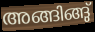
അങ്ങിങ്ങു്